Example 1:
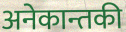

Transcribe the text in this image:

अनेकान्तकी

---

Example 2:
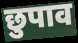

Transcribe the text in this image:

छुपाव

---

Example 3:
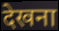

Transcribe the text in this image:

देखना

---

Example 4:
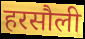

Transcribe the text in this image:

हरसौली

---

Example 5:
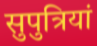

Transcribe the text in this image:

सुपुत्रियां